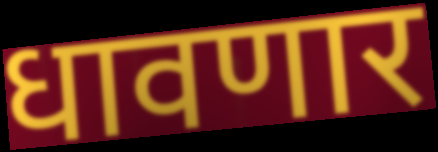
धावणार